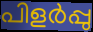
പിളർപ്പു